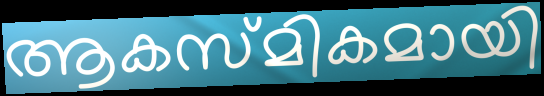
ആകസ്മികമായി